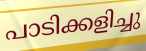
പാടിക്കളിച്ചു